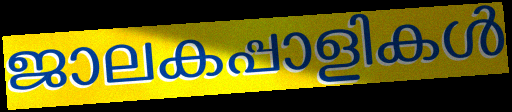
ജാലകപ്പാളികൾ